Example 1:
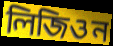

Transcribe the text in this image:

লিজিওন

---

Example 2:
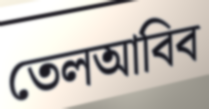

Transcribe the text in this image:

তেলআবিব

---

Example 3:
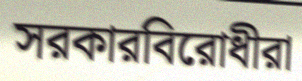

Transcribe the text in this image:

সরকারবিরোধীরা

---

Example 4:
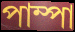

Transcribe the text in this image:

পাম্পা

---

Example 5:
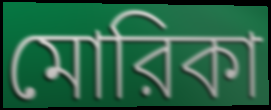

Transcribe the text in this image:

মোরিকা